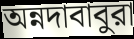
অন্নদাবাবুরা